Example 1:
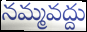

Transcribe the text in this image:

నమ్మవద్దు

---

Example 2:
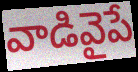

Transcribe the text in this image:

వాడివైపే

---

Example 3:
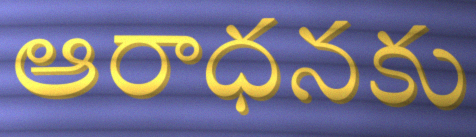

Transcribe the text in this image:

ఆరాధనకు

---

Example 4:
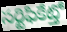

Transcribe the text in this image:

సర్టిఫికేట్తో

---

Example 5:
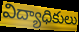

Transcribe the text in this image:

విద్యాధికులు